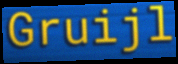
Gruijl